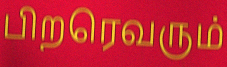
பிறரெவரும்